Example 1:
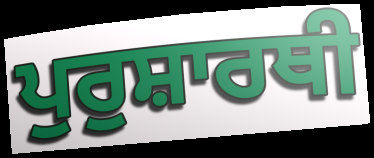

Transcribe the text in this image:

ਪੁਰੁਸ਼ਾਰਥੀ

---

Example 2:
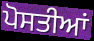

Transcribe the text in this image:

ਪੋਸਤੀਆਂ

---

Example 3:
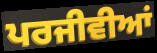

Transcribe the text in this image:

ਪਰਜੀਵੀਆਂ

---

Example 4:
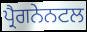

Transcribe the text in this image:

ਪ੍ਰੈਗਨੇਨਟਲ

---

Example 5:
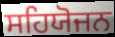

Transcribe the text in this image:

ਸਹਿਯੋਜਨ